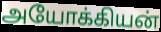
அயோக்கியன்